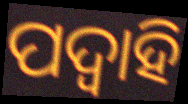
ପଦ୍ଵାହି